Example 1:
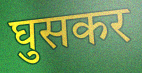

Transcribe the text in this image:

घुसकर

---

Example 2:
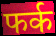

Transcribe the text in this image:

फर्क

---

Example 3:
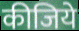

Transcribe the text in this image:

कीजिये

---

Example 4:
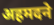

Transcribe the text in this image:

अहमदने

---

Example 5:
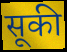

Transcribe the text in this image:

सूकी